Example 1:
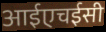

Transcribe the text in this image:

आईएचईसी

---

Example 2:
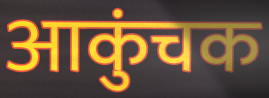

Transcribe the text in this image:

आकुंचक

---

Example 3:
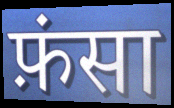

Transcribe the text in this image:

फ़ंसा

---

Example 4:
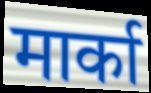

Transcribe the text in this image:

मार्का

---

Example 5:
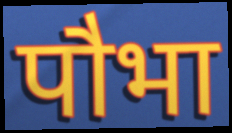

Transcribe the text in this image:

पौभा